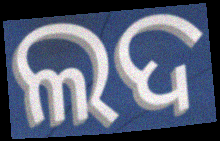
ଲଦ